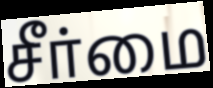
சீர்மை